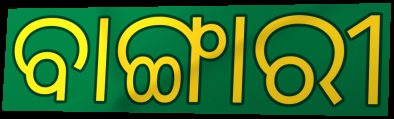
ବାଙ୍ଗାରୀ